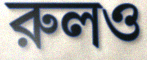
রুলও